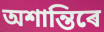
অশান্তিৰে